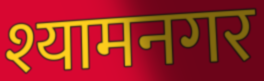
श्यामनगर